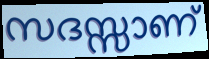
സദസ്സാണ്